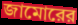
জামোরের